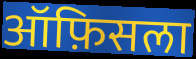
ऑफ़िसला